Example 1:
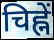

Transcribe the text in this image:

चिह्नें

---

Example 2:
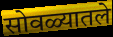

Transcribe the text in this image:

सोवळ्यातले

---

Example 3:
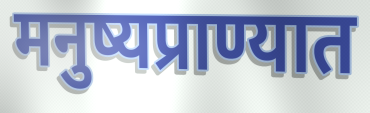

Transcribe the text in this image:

मनुष्यप्राण्यात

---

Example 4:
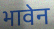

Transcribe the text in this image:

भावेन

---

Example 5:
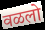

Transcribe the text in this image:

वळलो